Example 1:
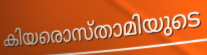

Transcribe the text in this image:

കിയരൊസ്താമിയുടെ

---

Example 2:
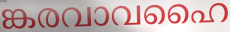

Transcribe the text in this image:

ങ്കരവാവഹൈ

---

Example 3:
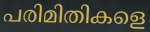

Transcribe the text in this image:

പരിമിതികളെ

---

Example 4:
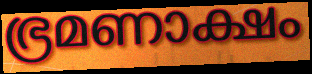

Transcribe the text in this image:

ഭ്രമണാക്ഷം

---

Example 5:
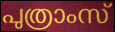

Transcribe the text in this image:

പുത്രാംസ്